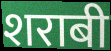
शराबी